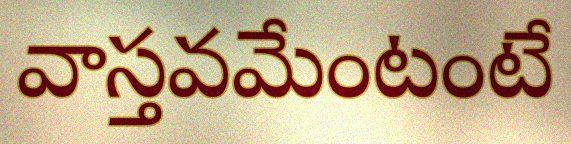
వాస్తవమేంటంటే